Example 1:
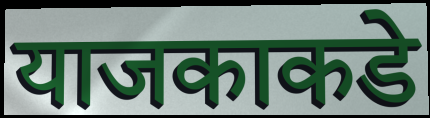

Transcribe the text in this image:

याजकाकडे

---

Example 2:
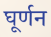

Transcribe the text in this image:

घूर्णन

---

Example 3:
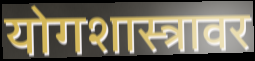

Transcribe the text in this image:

योगशास्त्रावर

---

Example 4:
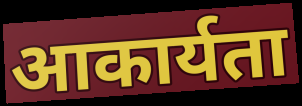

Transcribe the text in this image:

आकार्यता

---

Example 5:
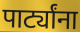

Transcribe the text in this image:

पार्ट्यांना